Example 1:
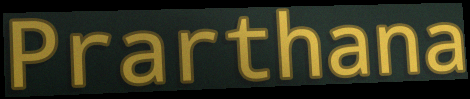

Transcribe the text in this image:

Prarthana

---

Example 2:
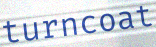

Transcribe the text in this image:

turncoat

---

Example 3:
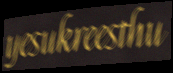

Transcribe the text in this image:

yesukreesthu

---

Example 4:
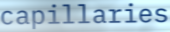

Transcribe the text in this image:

capillaries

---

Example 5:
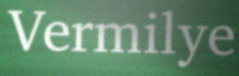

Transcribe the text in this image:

Vermilye